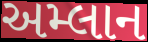
અમ્લાન